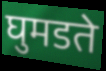
घुमडते